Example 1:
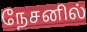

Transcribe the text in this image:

நேசனில்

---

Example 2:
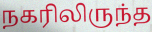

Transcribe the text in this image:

நகரிலிருந்த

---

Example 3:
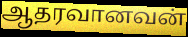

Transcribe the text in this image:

ஆதரவானவன்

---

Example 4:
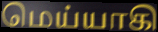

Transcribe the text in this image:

மெய்யாகி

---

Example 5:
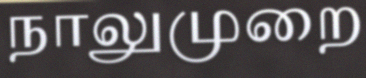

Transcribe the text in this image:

நாலுமுறை